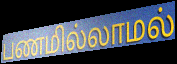
பணமில்லாமல்